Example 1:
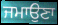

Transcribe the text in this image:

ਜਮਾਉਣਾ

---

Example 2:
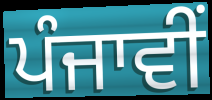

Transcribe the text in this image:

ਪੰਜਾਵੀਂ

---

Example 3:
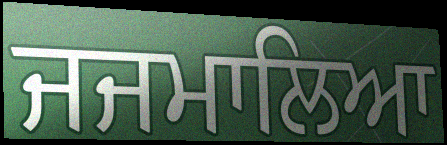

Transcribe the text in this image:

ਜਜਮਾਲਿਆ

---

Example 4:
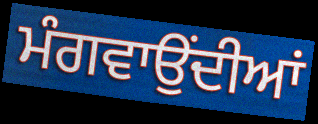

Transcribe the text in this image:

ਮੰਗਵਾਉਂਦੀਆਂ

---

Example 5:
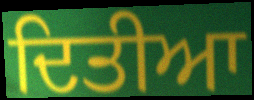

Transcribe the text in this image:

ਦਿਤੀਆ